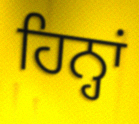
ਹਿਨ੍ਹਾਂ